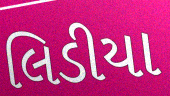
લિડીયા